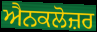
ਐਨਕਲੋਜ਼ਰ